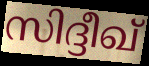
സിദ്ദീഖ്